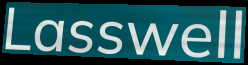
Lasswell